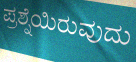
ಪ್ರಶ್ನೆಯಿರುವುದು